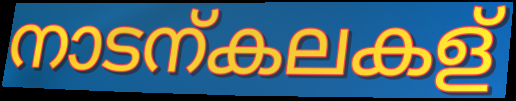
നാടന്കലകള്